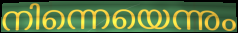
നിന്നെയെന്നും